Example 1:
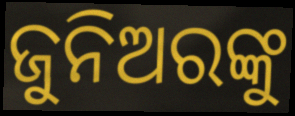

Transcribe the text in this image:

ଜୁନିଅରଙ୍କୁ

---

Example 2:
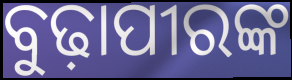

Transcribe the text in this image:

ବୁଢ଼ାପୀରଙ୍କ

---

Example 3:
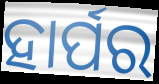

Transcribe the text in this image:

ହାର୍ପର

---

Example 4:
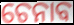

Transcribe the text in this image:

ଚେନାବ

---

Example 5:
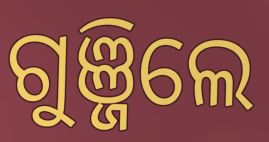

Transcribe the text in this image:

ଗୁଞ୍ଜିଲେ